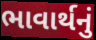
ભાવાર્થનું